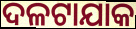
ଦଳଟାଯାକ